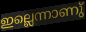
ഇല്ലെന്നാണു്